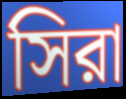
সিরা